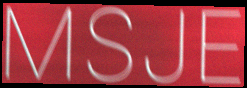
MSJE